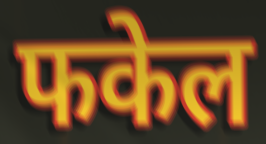
फकेल